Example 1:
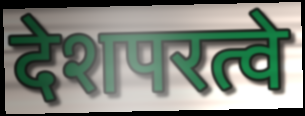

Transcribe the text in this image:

देशपरत्वे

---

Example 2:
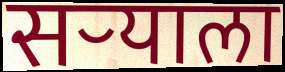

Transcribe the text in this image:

सऱ्याला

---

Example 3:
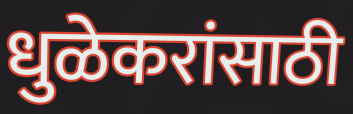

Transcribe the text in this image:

धुळेकरांसाठी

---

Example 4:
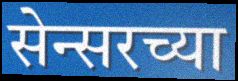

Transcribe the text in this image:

सेन्सरच्या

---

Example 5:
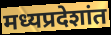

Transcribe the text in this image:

मध्यप्रदेशांत